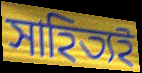
সাহিত্যই